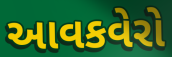
આવકવેરો